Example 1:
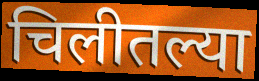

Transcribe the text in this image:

चिलीतल्या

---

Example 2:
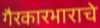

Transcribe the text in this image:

गैरकारभाराचे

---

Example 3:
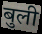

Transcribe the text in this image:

बुली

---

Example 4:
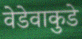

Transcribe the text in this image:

वेडेवाकुडे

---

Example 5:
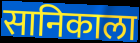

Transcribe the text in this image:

सानिकाला